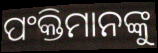
ପଂକ୍ତିମାନଙ୍କୁ